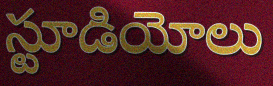
స్టూడియోలు